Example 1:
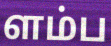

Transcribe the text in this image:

ளம்ப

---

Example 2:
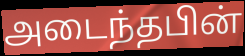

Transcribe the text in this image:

அடைந்தபின்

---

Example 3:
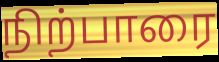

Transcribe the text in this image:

நிற்பாரை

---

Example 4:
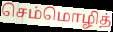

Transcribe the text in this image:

செம்மொழித்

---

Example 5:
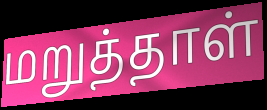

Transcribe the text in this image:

மறுத்தாள்